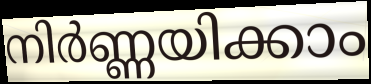
നിർണ്ണയിക്കാം